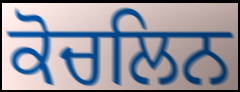
ਕੋਚਲਿਨ